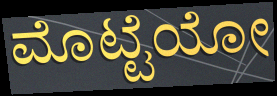
ಮೊಟ್ಟೆಯೋ